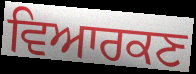
ਵਿਆਰਕਣ